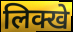
लिक्खे